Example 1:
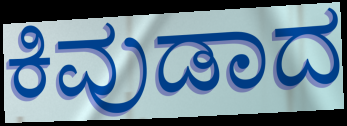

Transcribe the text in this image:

ಕಿವುಡಾದ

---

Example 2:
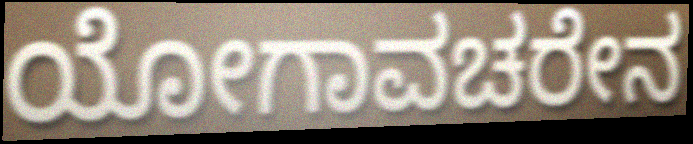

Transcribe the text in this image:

ಯೋಗಾವಚರೇನ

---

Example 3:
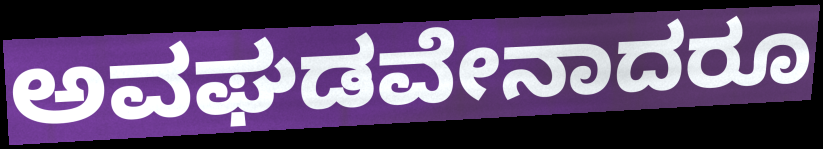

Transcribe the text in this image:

ಅವಘಡವೇನಾದರೂ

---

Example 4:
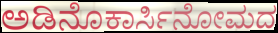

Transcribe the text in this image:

ಅಡಿನೊಕಾರ್ಸಿನೋಮದ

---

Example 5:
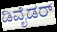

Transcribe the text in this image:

ಡಿವೈಡರ್